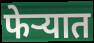
फेऱ्यात